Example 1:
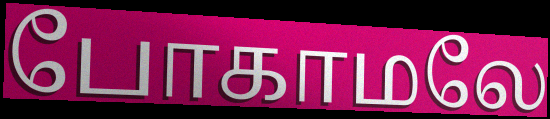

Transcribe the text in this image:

போகாமலே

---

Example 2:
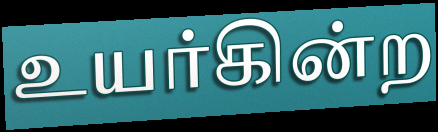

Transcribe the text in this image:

உயர்கின்ற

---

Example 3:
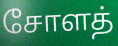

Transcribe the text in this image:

சோளத்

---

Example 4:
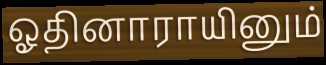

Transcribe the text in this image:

ஓதினாராயினும்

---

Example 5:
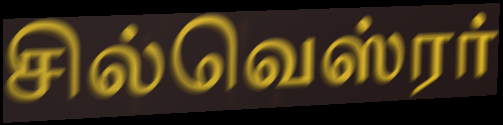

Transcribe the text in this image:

சில்வெஸ்ரர்